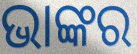
ଭାଙ୍କର